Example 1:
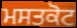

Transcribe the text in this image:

ਮਸਤਕੋਟ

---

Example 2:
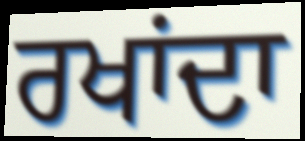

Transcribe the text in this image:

ਰਖਾਂਦਾ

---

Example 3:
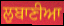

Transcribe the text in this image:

ਲੁਬਾਣੀਆ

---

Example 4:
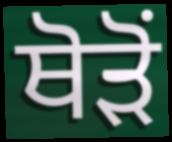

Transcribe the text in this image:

ਥੋੜੋਂ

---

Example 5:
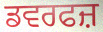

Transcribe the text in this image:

ਡਵਰਫਜ਼